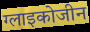
ग्लाइकोजीन